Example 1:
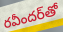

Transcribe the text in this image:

రవీందర్‌తో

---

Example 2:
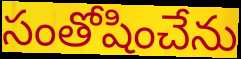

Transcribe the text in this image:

సంతోషించేను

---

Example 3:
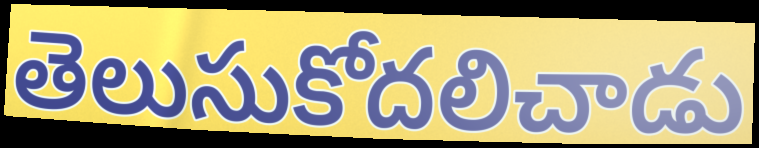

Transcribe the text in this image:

తెలుసుకోదలిచాడు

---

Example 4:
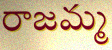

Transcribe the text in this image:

రాజమ్మ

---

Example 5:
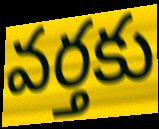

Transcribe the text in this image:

వర్తకు